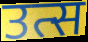
उत्स